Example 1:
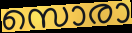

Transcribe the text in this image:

സൊരാ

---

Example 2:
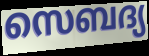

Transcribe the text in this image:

സെബദ്യ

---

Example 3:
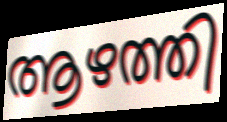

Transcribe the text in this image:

ആഴത്തി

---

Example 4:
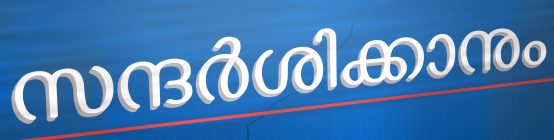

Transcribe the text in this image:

സന്ദർശിക്കാനും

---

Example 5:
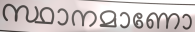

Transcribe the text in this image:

സ്ഥാനമാണോ